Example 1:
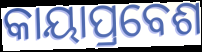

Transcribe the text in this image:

କାୟାପ୍ରବେଶ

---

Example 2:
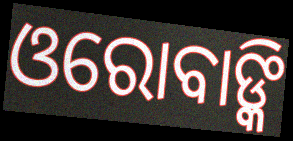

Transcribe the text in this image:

ଓରୋବାଙ୍କି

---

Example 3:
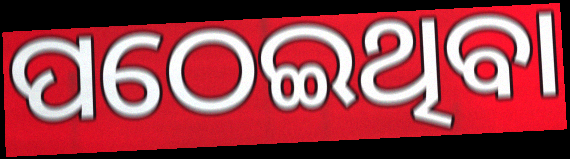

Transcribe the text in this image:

ପଠେଇଥିବା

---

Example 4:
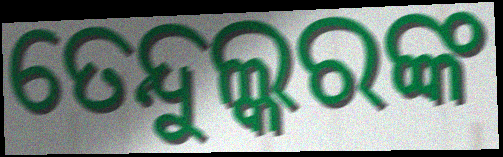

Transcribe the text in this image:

ତେନ୍ଦୁଲ୍କରଙ୍କ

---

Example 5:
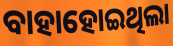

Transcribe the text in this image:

ବାହାହୋଇଥିଲା